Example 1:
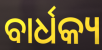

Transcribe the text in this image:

ବାର୍ଧକ୍ୟ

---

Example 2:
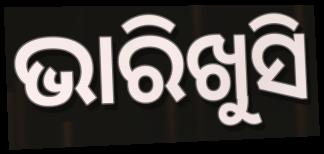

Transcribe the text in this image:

ଭାରିଖୁସି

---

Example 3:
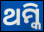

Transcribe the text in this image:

ଥମ୍କି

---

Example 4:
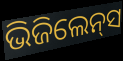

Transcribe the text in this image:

ଭିଜିଲେନ୍‌ସ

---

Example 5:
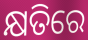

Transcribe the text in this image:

କ୍ଷତିରେ